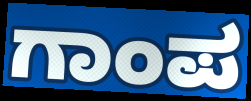
ಗಾಂಪ